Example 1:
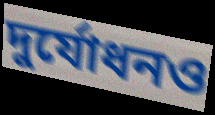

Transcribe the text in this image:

দুর্যোধনও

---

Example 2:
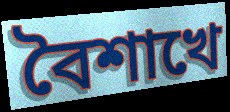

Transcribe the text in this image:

বৈশাখে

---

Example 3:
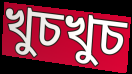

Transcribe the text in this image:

খুচখুচ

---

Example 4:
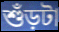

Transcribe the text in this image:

শুঁড়টা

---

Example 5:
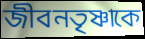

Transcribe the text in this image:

জীবনতৃষ্ণাকে